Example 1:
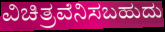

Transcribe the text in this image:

ವಿಚಿತ್ರವೆನಿಸಬಹುದು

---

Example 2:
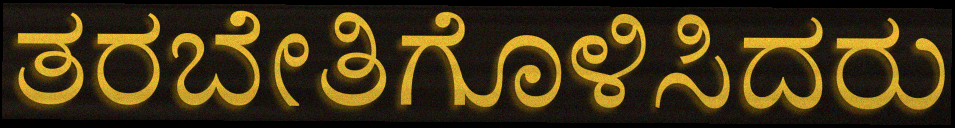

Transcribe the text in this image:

ತರಬೇತಿಗೊಳಿಸಿದರು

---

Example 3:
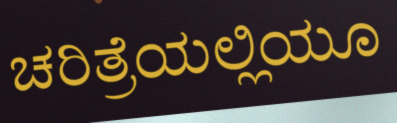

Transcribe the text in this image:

ಚರಿತ್ರೆಯಲ್ಲಿಯೂ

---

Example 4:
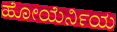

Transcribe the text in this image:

ಹೋಯೆರ್ನಿಯ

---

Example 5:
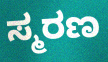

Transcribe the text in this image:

ಸ್ಮರಣ